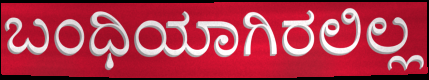
ಬಂಧಿಯಾಗಿರಲಿಲ್ಲ